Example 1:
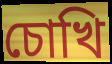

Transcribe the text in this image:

চোখি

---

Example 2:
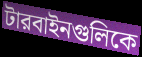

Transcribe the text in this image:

টারবাইনগুলিকে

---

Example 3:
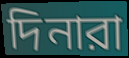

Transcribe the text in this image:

দিনারা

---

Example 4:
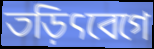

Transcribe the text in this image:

তড়িৎবেগে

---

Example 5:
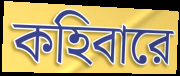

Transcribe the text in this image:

কহিবারে